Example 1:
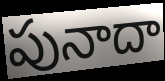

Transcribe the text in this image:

పునాదా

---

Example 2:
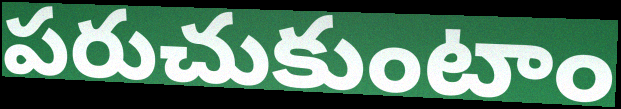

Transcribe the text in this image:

పరుచుకుంటాం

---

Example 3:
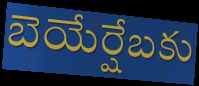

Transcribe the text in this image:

బెయేర్షేబకు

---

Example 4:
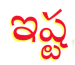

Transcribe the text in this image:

ఇష్ట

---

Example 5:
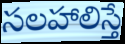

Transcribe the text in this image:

సలహాలిస్తే